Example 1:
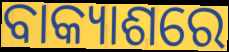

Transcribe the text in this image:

ବାକ୍ୟାଶରେ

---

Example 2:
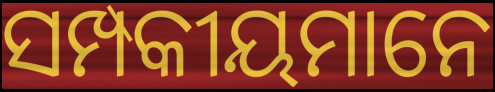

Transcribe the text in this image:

ସମ୍ପକୀୟମାନେ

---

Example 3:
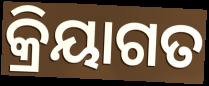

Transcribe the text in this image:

କ୍ରିୟାଗତ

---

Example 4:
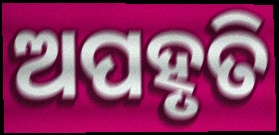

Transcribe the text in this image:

ଅପହୃତି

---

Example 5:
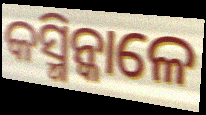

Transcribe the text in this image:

କସ୍ମିନ୍କାଳେ